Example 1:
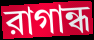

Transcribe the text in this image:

রাগান্ধ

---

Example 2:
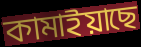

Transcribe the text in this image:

কামাইয়াছে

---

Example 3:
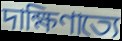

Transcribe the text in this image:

দাক্ষিণাত্যে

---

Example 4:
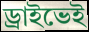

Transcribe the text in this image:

ড্রাইভেই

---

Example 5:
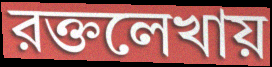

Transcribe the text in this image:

রক্তলেখায়